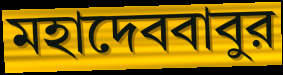
মহাদেববাবুর